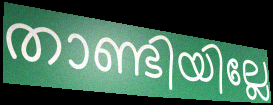
താണ്ടിയില്ലേ